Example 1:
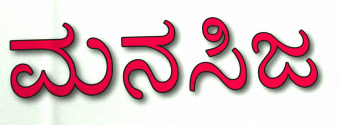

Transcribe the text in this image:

ಮನಸಿಜ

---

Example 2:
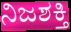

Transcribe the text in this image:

ನಿಜಶಕ್ತಿ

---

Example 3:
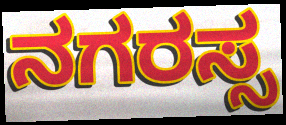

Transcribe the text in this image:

ನಗರಸ್ಸ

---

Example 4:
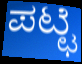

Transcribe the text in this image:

ಪಟ್ಟೆ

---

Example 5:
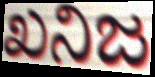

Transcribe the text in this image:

ಖನಿಜ